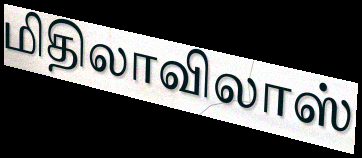
மிதிலாவிலாஸ்